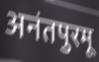
अनंतपुरमू